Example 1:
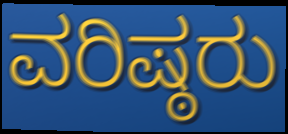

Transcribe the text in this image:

ವರಿಷ್ಠರು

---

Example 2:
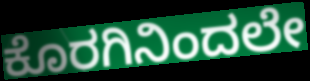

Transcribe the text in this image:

ಕೊರಗಿನಿಂದಲೇ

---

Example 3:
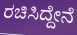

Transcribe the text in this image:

ರಚಿಸಿದ್ದೇನೆ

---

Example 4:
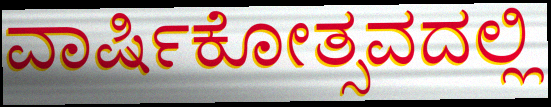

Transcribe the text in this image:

ವಾರ್ಷಿಕೋತ್ಸವದಲ್ಲಿ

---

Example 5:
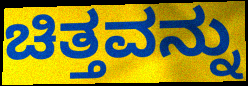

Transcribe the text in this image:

ಚಿತ್ತವನ್ನು